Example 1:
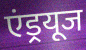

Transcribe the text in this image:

एंड्रयूज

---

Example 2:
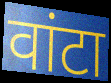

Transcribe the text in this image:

वांटा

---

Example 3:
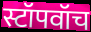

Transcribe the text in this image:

स्टॉपवॉच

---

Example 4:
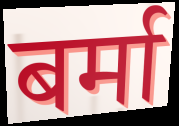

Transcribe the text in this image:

बर्मा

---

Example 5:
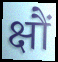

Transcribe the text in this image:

क्षौं